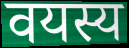
वयस्य